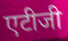
एटीजी